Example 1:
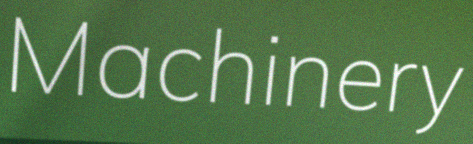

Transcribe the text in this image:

Machinery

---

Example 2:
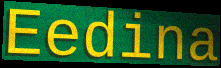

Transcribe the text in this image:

Eedina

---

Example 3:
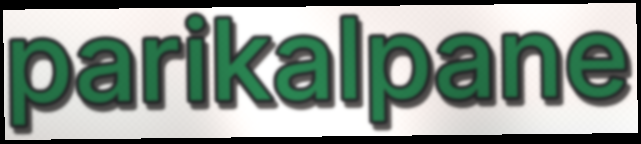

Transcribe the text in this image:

parikalpane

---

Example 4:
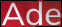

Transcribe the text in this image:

Ade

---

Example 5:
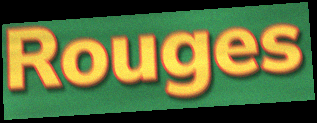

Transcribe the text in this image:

Rouges